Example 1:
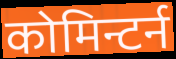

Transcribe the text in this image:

कोमिन्टर्न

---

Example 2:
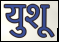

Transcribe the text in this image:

युशू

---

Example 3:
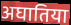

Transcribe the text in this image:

अघातिया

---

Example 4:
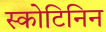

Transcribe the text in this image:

स्कोटिनिन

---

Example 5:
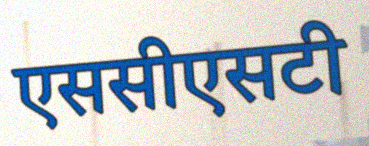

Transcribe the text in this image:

एससीएसटी